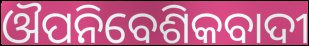
ଔପନିବେଶିକବାଦୀ